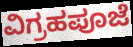
ವಿಗ್ರಹಪೂಜೆ